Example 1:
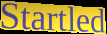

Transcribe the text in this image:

Startled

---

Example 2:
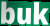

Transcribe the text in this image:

buk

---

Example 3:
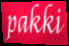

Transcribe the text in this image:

pakki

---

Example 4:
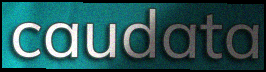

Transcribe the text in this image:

caudata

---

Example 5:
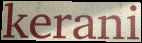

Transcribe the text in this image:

kerani